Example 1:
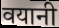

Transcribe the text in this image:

वयानी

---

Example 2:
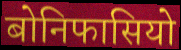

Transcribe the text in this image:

बोनिफासियो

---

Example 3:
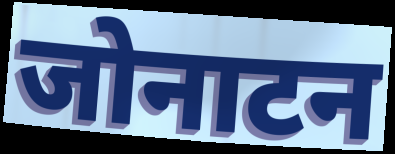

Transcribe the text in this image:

जोनाटन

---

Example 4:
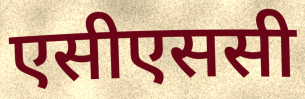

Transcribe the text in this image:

एसीएससी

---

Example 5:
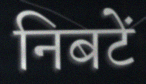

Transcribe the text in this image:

निबटें